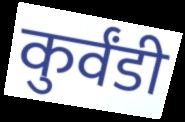
कुर्वंडी